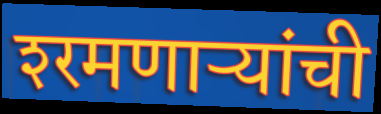
श्रमणाऱ्यांची